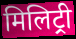
मिलिट्री